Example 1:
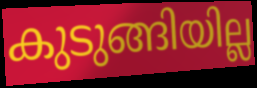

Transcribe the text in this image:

കുടുങ്ങിയില്ല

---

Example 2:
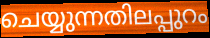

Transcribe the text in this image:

ചെയ്യുന്നതിലപ്പുറം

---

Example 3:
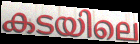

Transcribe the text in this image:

കടയിലെ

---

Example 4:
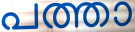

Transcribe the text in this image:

പത്താ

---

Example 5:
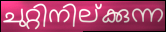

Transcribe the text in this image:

ചുറ്റിനില്ക്കുന്ന